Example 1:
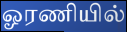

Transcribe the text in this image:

ஓரணியில்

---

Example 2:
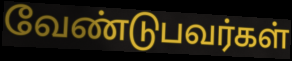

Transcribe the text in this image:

வேண்டுபவர்கள்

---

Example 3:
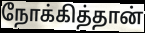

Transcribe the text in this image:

நோக்கித்தான்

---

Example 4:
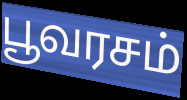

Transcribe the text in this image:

பூவரசம்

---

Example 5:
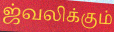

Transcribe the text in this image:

ஜ்வலிக்கும்